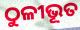
ଠୁଳୀଭୂତ